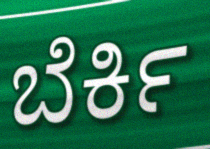
ಬೆರ್ಕಿ